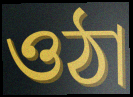
ওঠা